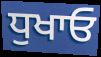
ਧੁਖਾਓ